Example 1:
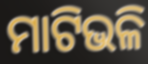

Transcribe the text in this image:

ମାଟିଭଳି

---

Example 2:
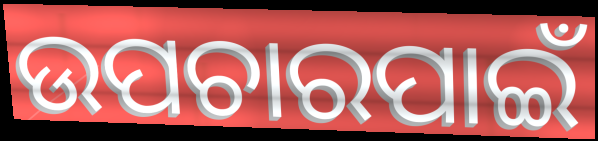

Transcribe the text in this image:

ଉପଚାରପାଇଁ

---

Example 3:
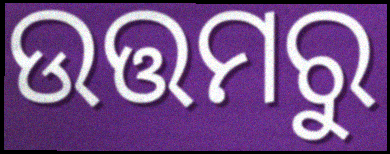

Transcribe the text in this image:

ଉତ୍ତମରୁ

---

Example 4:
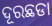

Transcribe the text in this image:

ଦୂରଛଡା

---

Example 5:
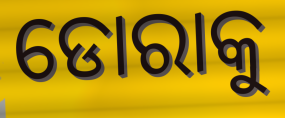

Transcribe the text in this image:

ଡୋରାକୁ